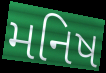
મનિષ